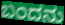
ಬಂದನು